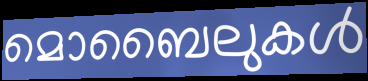
മൊബൈലുകൾ